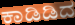
ಕಾಡಿಡಿದ